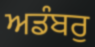
ਅਡੰਬਰੁ